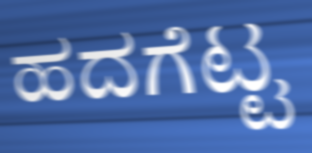
ಹದಗೆಟ್ಟ